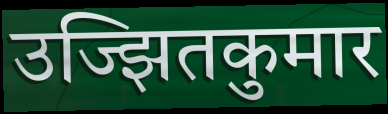
उज्झितकुमार